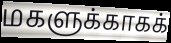
மகளுக்காகக்